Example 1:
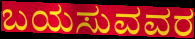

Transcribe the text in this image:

ಬಯಸುವವರ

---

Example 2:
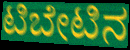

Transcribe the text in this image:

ಟಿಬೇಟಿನ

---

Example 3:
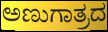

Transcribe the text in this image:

ಅಣುಗಾತ್ರದ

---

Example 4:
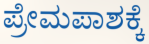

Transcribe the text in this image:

ಪ್ರೇಮಪಾಶಕ್ಕೆ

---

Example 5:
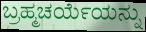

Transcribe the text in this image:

ಬ್ರಹ್ಮಚರ್ಯೆಯನ್ನು